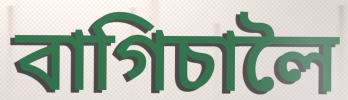
বাগিচালৈ